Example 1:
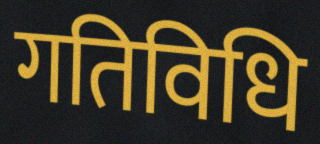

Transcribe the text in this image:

गतिविधि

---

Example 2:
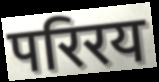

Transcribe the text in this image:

परिरय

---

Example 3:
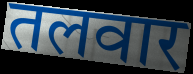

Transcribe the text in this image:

तलवार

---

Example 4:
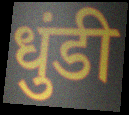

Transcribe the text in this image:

धुंडी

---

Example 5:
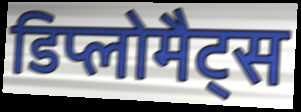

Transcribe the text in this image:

डिप्लोमैट्स